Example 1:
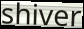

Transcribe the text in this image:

shiver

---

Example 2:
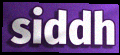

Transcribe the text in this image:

siddh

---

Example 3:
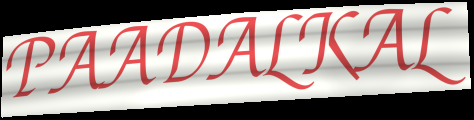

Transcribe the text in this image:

PAADALKAL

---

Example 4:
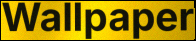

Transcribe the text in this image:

Wallpaper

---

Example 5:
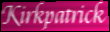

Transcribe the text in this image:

Kirkpatrick